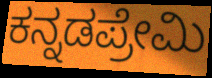
ಕನ್ನಡಪ್ರೇಮಿ